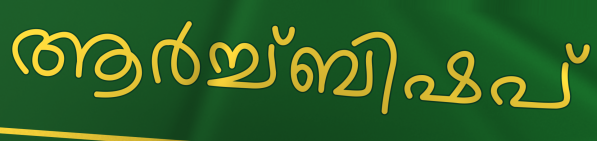
ആർച്ച്ബിഷപ്